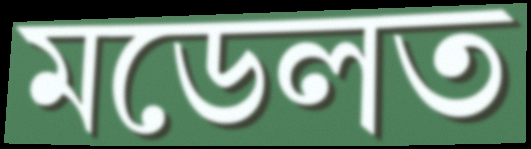
মডেলত